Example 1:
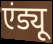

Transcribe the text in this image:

एंड्यू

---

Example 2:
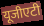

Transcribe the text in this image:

यूजीएटी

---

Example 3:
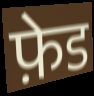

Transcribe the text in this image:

फ़ेड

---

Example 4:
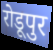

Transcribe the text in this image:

रोडूपुर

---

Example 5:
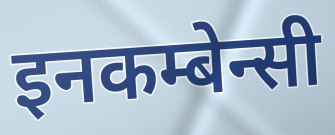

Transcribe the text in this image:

इनकम्बेन्सी